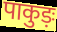
पाकुड़ः